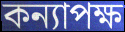
কন্যাপক্ষ